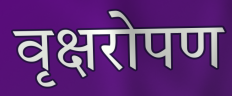
वृक्षरोपण